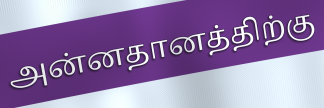
அன்னதானத்திற்கு